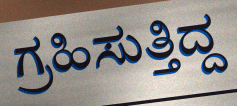
ಗ್ರಹಿಸುತ್ತಿದ್ದ